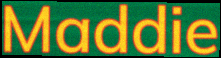
Maddie